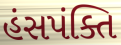
હંસપંક્તિ